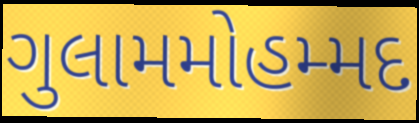
ગુલામમોહમ્મદ